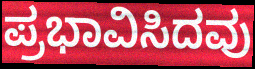
ಪ್ರಭಾವಿಸಿದವು